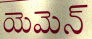
యెమెన్